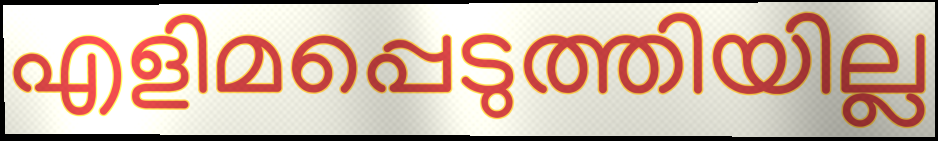
എളിമപ്പെടുത്തിയില്ല